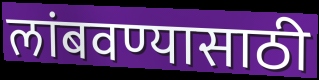
लांबवण्यासाठी